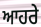
ਆਹਰੇ